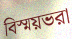
বিস্ময়ভরা